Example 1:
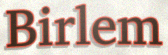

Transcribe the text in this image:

Birlem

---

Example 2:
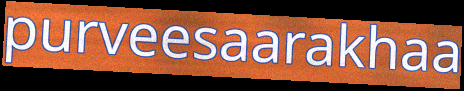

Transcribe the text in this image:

purveesaarakhaa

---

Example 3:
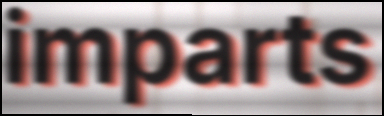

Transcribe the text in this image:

imparts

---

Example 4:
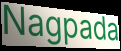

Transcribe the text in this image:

Nagpada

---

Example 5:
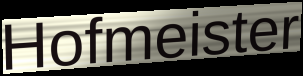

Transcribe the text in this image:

Hofmeister